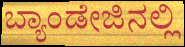
ಬ್ಯಾಂಡೇಜಿನಲ್ಲಿ